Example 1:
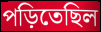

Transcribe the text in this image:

পড়িতেছিল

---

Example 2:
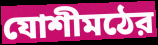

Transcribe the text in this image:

যোশীমঠের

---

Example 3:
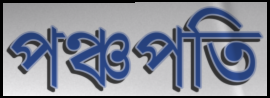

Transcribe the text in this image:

পঞ্চপতি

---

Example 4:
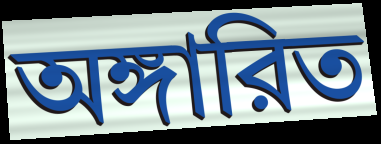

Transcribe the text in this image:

অঙ্গারিত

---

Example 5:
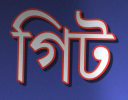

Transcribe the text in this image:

গিট